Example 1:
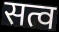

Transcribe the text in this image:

सत्व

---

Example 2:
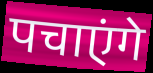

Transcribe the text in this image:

पचाएंगे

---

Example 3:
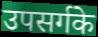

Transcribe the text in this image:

उपसर्गके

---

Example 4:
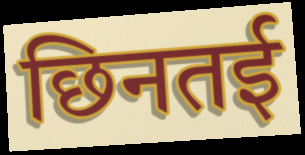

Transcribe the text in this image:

छिनतई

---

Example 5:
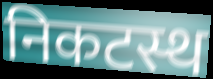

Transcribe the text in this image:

निकटस्थ